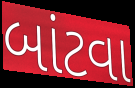
બાંટવા